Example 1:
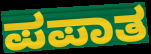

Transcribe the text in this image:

ಪಪಾತ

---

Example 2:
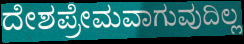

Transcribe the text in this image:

ದೇಶಪ್ರೇಮವಾಗುವುದಿಲ್ಲ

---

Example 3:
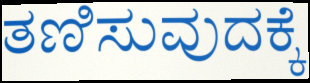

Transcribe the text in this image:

ತಣಿಸುವುದಕ್ಕೆ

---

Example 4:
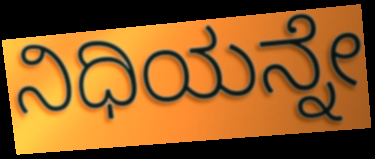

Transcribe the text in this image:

ನಿಧಿಯನ್ನೇ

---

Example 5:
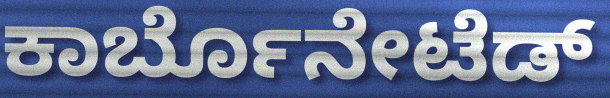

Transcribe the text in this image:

ಕಾರ್ಬೊನೇಟೆಡ್